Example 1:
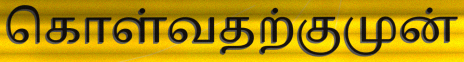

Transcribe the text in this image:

கொள்வதற்குமுன்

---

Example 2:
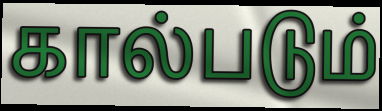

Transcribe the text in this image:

கால்படும்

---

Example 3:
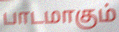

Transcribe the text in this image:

பாடமாகும்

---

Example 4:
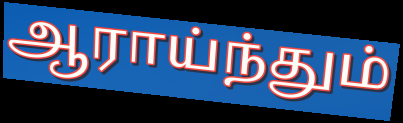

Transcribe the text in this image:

ஆராய்ந்தும்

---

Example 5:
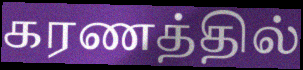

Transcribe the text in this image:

கரணத்தில்